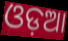
ଓଡ଼ଆ